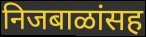
निजबाळांसह